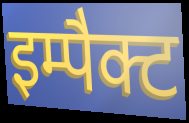
इम्पैक्ट